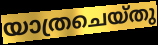
യാത്രചെയ്തു